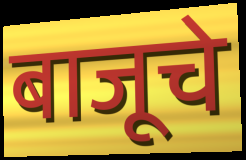
बाजूचे